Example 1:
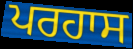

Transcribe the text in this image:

ਪਰਹਾਸ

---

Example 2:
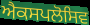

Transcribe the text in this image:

ਐਕਸਪਲੋਸਿਵ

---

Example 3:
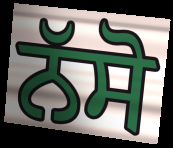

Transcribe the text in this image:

ਨੱਸੋ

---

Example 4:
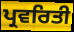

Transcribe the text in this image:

ਪ੍ਰਵਰਿਤੀ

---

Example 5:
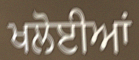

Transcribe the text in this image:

ਖਲੋਈਆਂ